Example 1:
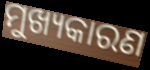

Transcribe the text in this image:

ମୁଖ୍ୟକାରଣ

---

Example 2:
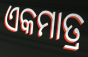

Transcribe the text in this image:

ଏକମାତ୍ର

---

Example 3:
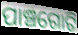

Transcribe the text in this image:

ପାଞ୍ଚଗୋଟି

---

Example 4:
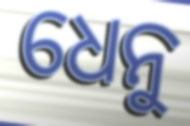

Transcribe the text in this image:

ଧେନୁ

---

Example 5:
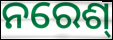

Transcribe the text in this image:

ନରେଶ୍